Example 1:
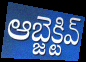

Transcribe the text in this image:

ఆబ్జెక్టివ్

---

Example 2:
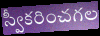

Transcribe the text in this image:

స్వీకరించగల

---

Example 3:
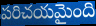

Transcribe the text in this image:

పరిచయమైంది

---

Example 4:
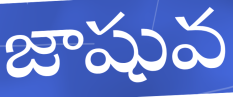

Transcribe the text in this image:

జాషువ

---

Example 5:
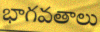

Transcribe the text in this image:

భాగవతాలు